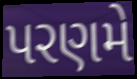
પરણમે